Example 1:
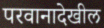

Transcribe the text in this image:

परवानादेखील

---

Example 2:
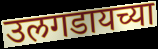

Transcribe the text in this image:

उलगडायच्या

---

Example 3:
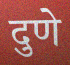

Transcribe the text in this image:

दुणे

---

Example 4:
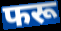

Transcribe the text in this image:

फरू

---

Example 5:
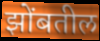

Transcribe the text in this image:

झोंबतील